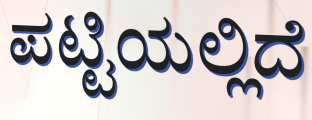
ಪಟ್ಟಿಯಲ್ಲಿದೆ